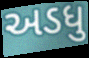
અડધુ